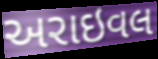
અરાઇવલ